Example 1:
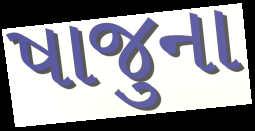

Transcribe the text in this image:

ષાજુના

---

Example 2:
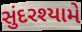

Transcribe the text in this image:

સુંદરશ્યામે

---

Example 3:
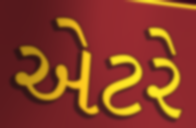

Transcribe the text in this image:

એટરે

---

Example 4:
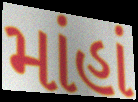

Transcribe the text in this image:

માંહાં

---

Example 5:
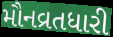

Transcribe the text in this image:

મૌનવ્રતધારી